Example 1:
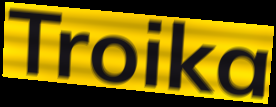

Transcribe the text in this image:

Troika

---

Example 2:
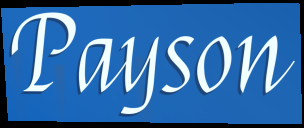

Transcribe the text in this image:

Payson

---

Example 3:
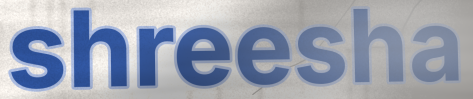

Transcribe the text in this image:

shreesha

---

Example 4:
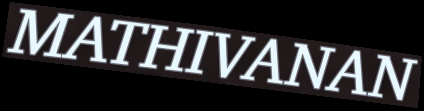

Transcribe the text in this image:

MATHIVANAN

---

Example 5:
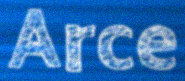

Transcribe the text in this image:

Arce